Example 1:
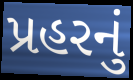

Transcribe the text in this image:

પ્રહરનું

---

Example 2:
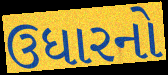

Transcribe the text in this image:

ઉધારનો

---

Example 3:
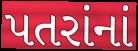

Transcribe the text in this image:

પતરાંનાં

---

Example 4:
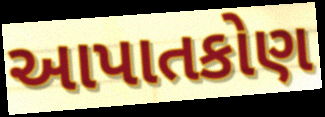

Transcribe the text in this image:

આપાતકોણ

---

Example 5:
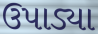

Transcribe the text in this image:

ઉપાડ્યા